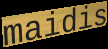
maidis